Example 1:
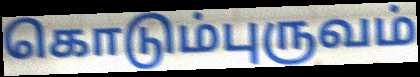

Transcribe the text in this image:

கொடும்புருவம்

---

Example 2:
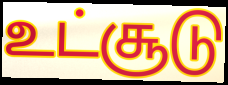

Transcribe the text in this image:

உட்சூடு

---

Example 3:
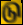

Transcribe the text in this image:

டு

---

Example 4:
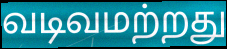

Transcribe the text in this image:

வடிவமற்றது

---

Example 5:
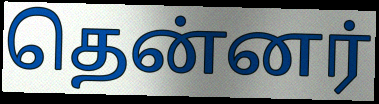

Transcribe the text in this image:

தென்னர்